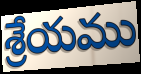
శ్రేయము